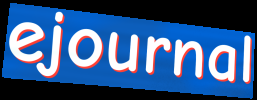
ejournal